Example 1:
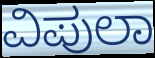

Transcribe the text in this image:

ವಿಪುಲಾ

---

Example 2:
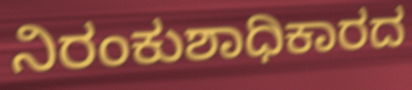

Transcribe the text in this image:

ನಿರಂಕುಶಾಧಿಕಾರದ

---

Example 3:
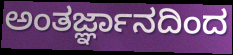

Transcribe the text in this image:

ಅಂತರ್ಜ್ಞಾನದಿಂದ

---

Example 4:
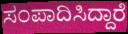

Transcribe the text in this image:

ಸಂಪಾದಿಸಿದ್ದಾರೆ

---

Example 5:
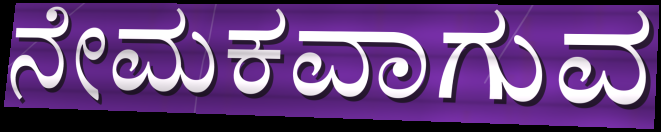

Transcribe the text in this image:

ನೇಮಕವಾಗುವ